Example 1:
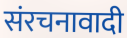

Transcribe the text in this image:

संरचनावादी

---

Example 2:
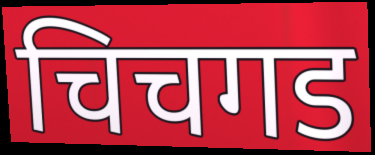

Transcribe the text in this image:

चिचगड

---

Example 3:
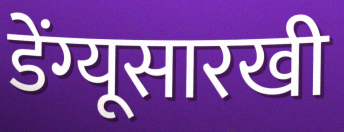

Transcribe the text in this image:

डेंग्यूसारखी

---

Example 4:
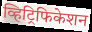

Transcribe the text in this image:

व्हिट्रिफिकेशन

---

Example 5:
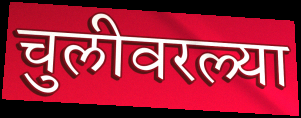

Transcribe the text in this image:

चुलीवरल्या